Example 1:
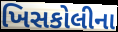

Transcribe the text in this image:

ખિસકોલીના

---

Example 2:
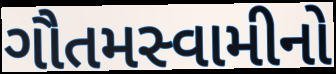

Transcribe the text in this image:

ગૌતમસ્વામીનો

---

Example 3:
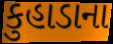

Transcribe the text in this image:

કુહાડાના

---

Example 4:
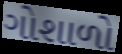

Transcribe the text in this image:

ગોશાળો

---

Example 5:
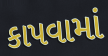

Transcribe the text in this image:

કાપવામાં